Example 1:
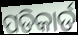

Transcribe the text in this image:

ପଡିକାର୍ଡ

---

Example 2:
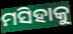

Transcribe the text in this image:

ମସିହାକୁ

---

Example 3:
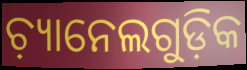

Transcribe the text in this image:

ଚ଼୍ୟାନେଲଗୁଡ଼ିକ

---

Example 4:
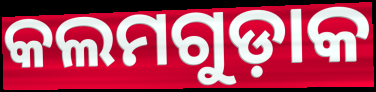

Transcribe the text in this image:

କଲମଗୁଡ଼ାକ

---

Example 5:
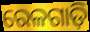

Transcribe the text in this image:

ରେଳଗାଡ଼ି